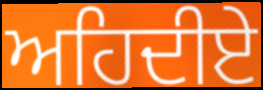
ਅਹਿਦੀਏ